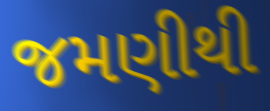
જમણીથી